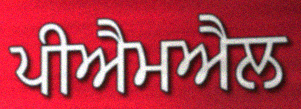
ਪੀਐਮਐਲ